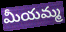
మీయమ్మ